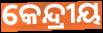
କେନ୍ଦ୍ରୀୟ